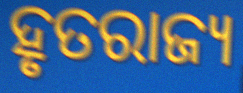
ହୃତରାଜ୍ୟ